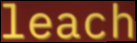
leach